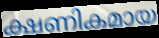
ക്ഷണികമായ